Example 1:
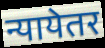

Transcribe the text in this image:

न्यायेतर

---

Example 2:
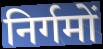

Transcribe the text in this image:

निर्गमों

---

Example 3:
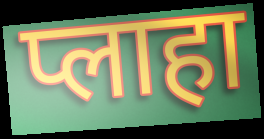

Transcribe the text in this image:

प्लाहा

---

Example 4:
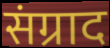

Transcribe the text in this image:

संग्राद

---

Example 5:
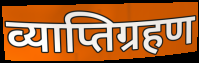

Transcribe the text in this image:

व्याप्तिग्रहण